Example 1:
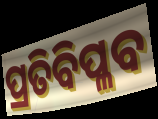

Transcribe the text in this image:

ପ୍ରତିବିପ୍ଳବ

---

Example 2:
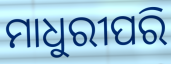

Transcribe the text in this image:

ମାଧୁରୀପରି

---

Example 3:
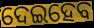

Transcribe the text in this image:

ଦେଇହେବ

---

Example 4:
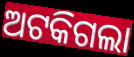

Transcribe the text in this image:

ଅଟକିଗଲା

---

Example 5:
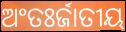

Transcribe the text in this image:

ଅଂତଃର୍ଜାତୀୟ